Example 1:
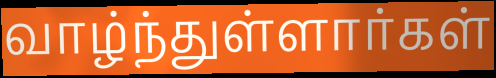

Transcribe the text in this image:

வாழ்ந்துள்ளார்கள்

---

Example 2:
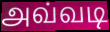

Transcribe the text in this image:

அவ்வடி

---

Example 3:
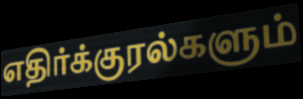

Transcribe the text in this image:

எதிர்க்குரல்களும்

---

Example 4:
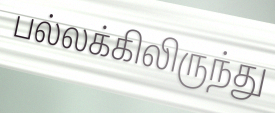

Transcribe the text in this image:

பல்லக்கிலிருந்து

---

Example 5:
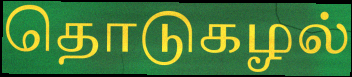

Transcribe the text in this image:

தொடுகழல்